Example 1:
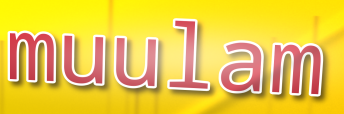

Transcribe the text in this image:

muulam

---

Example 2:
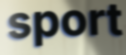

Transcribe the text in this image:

sport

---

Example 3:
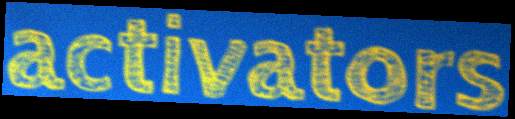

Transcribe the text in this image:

activators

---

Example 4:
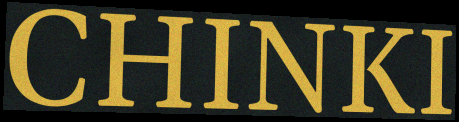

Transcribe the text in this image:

CHINKI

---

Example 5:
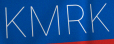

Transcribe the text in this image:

KMRK